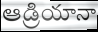
ఆడ్రియానా